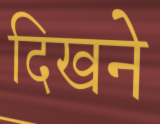
दिखने